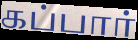
கப்பார்